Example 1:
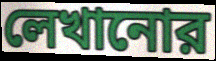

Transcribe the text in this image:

লেখানোর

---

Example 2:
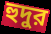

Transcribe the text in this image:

হুদুর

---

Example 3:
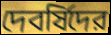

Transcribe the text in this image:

দেবর্ষিদের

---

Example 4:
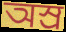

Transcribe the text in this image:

অস্র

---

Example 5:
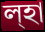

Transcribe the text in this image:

ল্হা